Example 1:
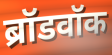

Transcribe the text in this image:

ब्रॉडवॉक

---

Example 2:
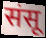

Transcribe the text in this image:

संसू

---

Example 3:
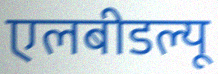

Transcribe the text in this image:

एलबीडल्यू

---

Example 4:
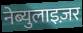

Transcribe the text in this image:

नेब्युलाइज़र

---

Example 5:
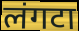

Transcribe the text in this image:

लंगटा